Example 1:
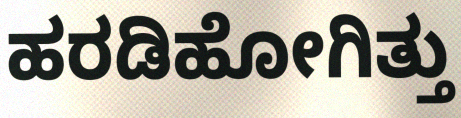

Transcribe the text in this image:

ಹರಡಿಹೋಗಿತ್ತು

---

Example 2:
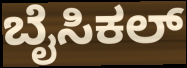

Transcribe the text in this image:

ಬೈಸಿಕಲ್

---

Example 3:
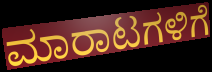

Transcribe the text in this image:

ಮಾರಾಟಗಳಿಗೆ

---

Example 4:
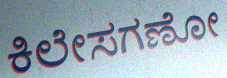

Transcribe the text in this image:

ಕಿಲೇಸಗಣೋ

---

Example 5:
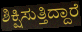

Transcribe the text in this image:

ಶಿಕ್ಷಿಸುತ್ತಿದ್ದಾರೆ